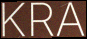
KRA